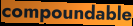
compoundable